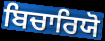
ਬਿਚਾਰਿਯੋ